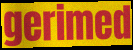
gerimed